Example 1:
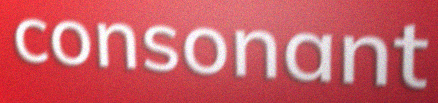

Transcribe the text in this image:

consonant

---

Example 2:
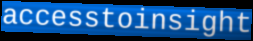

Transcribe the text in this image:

accesstoinsight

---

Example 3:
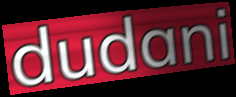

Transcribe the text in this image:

dudani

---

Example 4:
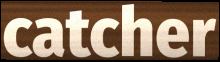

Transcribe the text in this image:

catcher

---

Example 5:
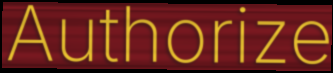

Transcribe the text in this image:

Authorize